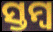
ସ୍ତମ୍ଵ